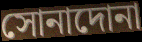
সোনাদোনা